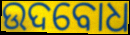
ଉଦବୋଧ